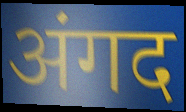
अंगद